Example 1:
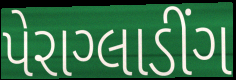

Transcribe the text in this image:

પેરાગ્લાડીંગ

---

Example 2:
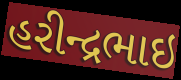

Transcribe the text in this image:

હરીન્દ્રભાઇ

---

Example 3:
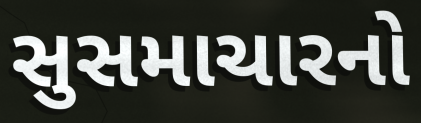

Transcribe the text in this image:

સુસમાચારનો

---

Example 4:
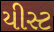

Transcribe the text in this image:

યીસ્ટ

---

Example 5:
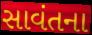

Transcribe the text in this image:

સાવંતના